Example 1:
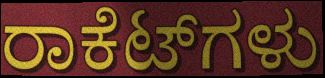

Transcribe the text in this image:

ರಾಕೆಟ್‌ಗಳು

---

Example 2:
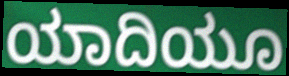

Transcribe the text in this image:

ಯಾದಿಯೂ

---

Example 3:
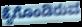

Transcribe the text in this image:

ಕೈಗೊಂಡಿರುವ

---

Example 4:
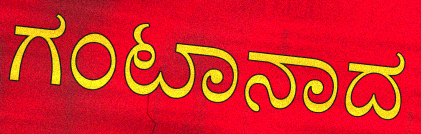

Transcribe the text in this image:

ಗಂಟಾನಾದ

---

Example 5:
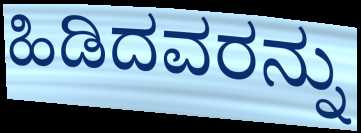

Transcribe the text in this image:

ಹಿಡಿದವರನ್ನು